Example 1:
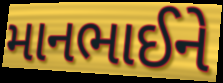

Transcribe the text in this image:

માનભાઈને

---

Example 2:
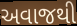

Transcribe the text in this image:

અવાજથી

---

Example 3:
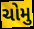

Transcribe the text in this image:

ચોમુ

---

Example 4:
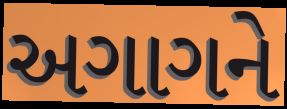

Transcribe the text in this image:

અગાગને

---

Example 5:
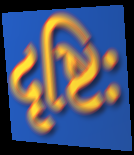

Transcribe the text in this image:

દૃષ્ટિઃ